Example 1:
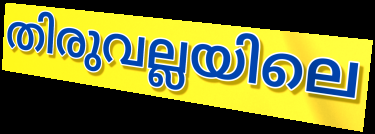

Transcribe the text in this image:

തിരുവല്ലയിലെ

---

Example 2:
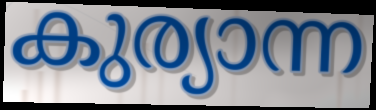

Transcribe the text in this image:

കുര്യാന്ന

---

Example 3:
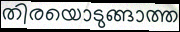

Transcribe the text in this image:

തിരയൊടുങ്ങാത്ത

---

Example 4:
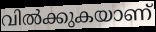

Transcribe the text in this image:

വിൽക്കുകയാണ്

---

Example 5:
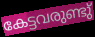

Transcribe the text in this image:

കേട്ടവരുണ്ടു്